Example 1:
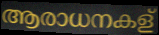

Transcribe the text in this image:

ആരാധനകള്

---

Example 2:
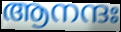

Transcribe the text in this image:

ആനന്ദഃ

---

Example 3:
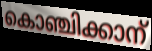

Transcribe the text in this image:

കൊഞ്ചിക്കാന്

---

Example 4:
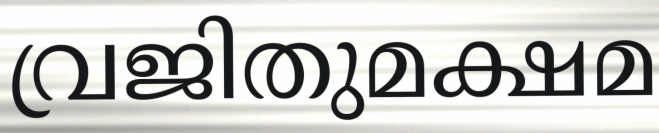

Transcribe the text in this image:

വ്രജിതുമക്ഷമ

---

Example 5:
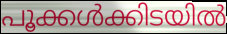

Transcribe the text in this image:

പൂക്കൾക്കിടയിൽ